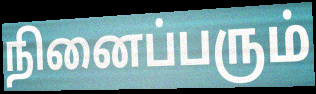
நினைப்பரும்